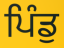
ਪਿੰਡੁ